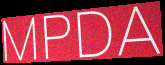
MPDA